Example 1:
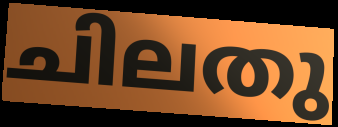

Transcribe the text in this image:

ചിലതു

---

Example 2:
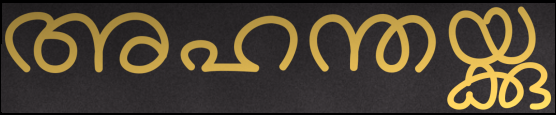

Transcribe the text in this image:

അഹന്തയ്ക്കു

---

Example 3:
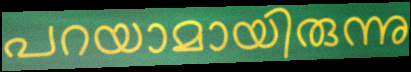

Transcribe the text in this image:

പറയാമായിരുന്നു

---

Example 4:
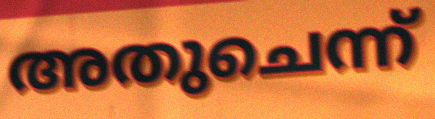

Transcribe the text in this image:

അതുചെന്ന്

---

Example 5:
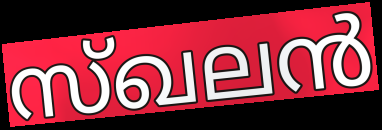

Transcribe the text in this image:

സ്ഖലൻ